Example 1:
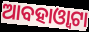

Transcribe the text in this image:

ଆବହାଓ୍ୱାଟା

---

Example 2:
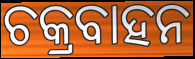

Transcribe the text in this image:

ଚକ୍ରବାହନ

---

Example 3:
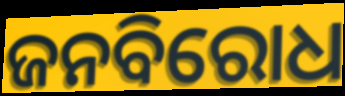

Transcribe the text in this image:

ଜନବିରୋଧ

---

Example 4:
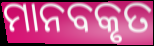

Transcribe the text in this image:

ମାନବକୃତ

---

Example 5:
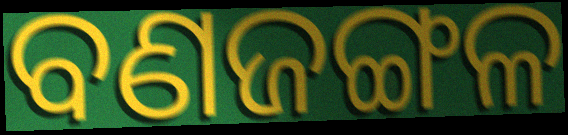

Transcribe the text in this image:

ବଣଜଙ୍ଗଳ